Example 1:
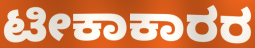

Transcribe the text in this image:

ಟೀಕಾಕಾರರ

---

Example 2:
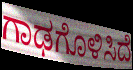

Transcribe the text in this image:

ಗಾಢಗೊಳಿಸಿದೆ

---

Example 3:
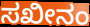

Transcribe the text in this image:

ಸಖೀನಂ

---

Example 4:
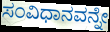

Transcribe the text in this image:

ಸಂವಿಧಾನವನ್ನೇ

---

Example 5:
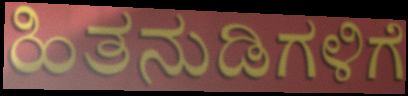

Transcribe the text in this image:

ಹಿತನುಡಿಗಳಿಗೆ